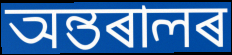
অন্তৰালৰ